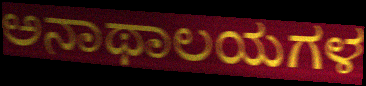
ಅನಾಥಾಲಯಗಳ